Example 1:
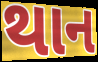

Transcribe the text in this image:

થાન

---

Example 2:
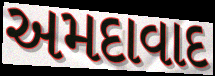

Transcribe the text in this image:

અમદાવાદ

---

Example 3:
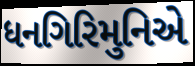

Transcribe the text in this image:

ધનગિરિમુનિએ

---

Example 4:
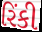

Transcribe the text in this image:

રિંકી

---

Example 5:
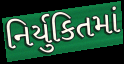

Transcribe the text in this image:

નિર્યુકિતમાં